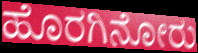
ಹೊರಗಿನೋರು